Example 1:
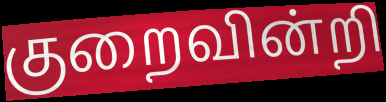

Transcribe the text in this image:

குறைவின்றி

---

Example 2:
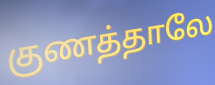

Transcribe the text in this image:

குணத்தாலே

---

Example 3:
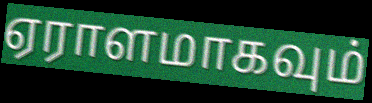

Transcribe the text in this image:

ஏராளமாகவும்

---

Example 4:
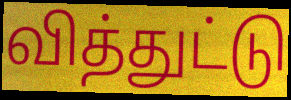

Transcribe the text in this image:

வித்துட்டு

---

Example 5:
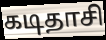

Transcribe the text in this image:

கடிதாசி